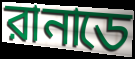
রানাডে